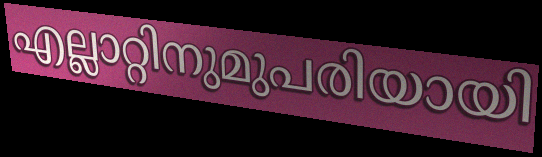
എല്ലാറ്റിനുമുപരിയായി